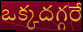
ఒక్కదగ్గరే